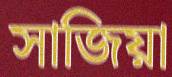
সাজিয়া